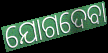
ଯୋଗଦେବା